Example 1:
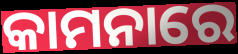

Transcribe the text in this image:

କାମନାରେ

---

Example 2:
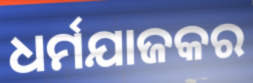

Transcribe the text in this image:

ଧର୍ମଯାଜକର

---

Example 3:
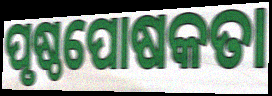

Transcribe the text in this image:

ପୃଷ୍ଠପୋଷକତା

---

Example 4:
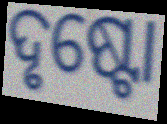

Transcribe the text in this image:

ଦୃଷ୍ଟୋ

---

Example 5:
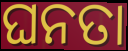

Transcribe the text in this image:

ଘନତା